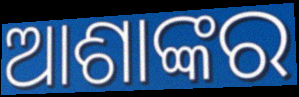
ଆଶାଙ୍କର